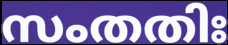
സംതതിഃ